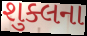
શુક્લના